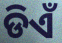
ଡିଏଁ